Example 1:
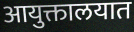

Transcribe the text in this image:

आयुक्तालयात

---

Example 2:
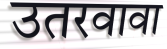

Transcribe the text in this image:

उतरवावा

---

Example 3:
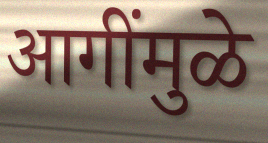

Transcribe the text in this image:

आगींमुळे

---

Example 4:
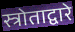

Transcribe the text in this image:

स्त्रोताद्वारे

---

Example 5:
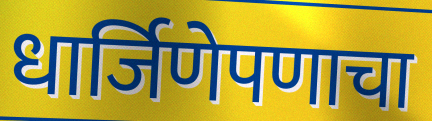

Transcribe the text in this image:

धार्जिणेपणाचा